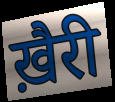
ख़ैरी